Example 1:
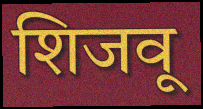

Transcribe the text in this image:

शिजवू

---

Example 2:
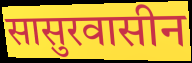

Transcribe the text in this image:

सासुरवासीन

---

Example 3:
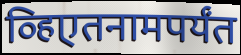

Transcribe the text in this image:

व्हिएतनामपर्यंत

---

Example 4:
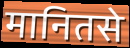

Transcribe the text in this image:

मानितसे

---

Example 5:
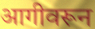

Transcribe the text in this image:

आगीवरून